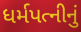
ધર્મપત્નીનું